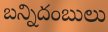
బన్నిదంబులు